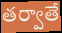
తర్వాతే